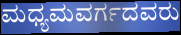
ಮಧ್ಯಮವರ್ಗದವರು